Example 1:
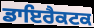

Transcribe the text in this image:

ਡਾਇਰੈਕਟਕ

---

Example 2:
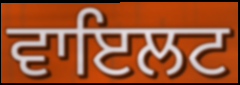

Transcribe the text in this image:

ਵਾਇਲਟ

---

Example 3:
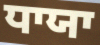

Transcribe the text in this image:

ਧਾਯਾ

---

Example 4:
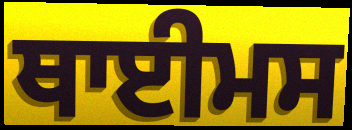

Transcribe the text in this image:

ਥਾਈਮਸ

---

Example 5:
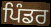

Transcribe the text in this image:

ਪਿੰਡਰ